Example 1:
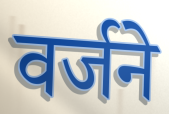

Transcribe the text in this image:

वर्जने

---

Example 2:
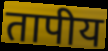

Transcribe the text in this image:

तापीय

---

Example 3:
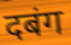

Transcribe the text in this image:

दबंग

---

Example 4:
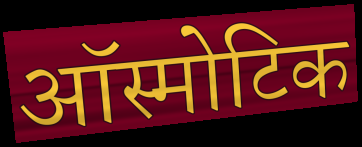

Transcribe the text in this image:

ऑस्मोटिक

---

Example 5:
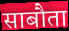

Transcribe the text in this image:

साबौता